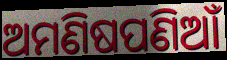
ଅମଣିଷପଣିଆଁ